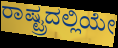
ರಾಷ್ಟ್ರದಲ್ಲಿಯೇ